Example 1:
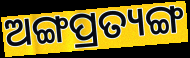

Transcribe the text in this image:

ଅଙ୍ଗପ୍ରତ୍ୟଙ୍ଗ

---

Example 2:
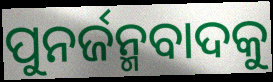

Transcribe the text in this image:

ପୁନର୍ଜନ୍ମବାଦକୁ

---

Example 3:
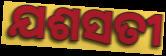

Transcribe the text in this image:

ଯଶସତୀ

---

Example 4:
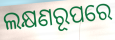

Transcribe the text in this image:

ଲକ୍ଷଣରୂପରେ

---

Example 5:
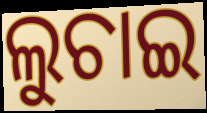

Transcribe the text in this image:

ଲୁଚାଇ